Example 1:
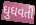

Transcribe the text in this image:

ઘુઘવતી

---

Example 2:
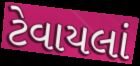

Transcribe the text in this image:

ટેવાયલાં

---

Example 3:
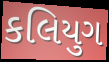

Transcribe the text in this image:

કલિયુગ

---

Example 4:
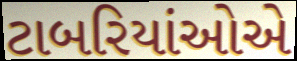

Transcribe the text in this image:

ટાબરિયાંઓએ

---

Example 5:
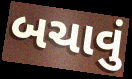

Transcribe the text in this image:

બચાવું